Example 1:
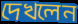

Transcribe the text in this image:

দেখলেন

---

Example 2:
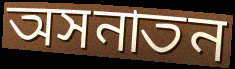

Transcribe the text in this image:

অসনাতন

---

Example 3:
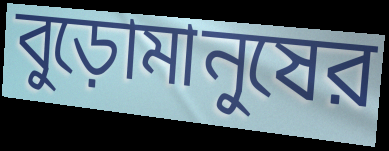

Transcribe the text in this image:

বুড়োমানুষের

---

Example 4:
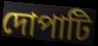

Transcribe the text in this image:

দোপাটি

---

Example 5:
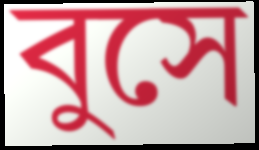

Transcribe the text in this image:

বুসে